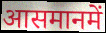
आसमानमें